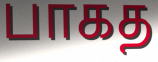
பாகத